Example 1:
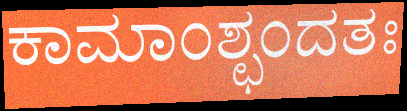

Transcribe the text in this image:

ಕಾಮಾಂಶ್ಛಂದತಃ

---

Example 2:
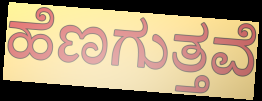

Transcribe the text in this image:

ಹೆಣಗುತ್ತವೆ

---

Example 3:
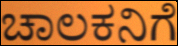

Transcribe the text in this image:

ಚಾಲಕನಿಗೆ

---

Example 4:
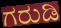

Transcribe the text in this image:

ಗರುಡಿ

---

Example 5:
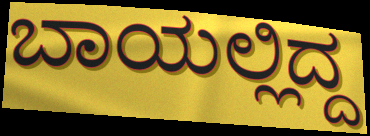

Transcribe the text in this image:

ಬಾಯಲ್ಲಿದ್ದ